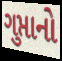
ગુપ્તાનો